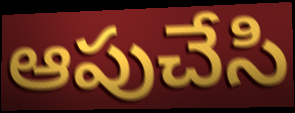
ఆపుచేసి